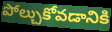
పోల్చుకోవడానికి